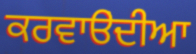
ਕਰਵਾੳਂਦੀਆ